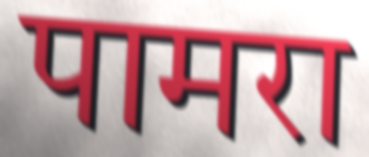
पामरा